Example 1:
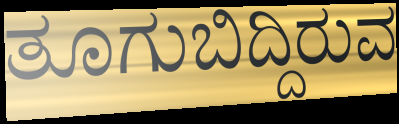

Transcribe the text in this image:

ತೂಗುಬಿದ್ದಿರುವ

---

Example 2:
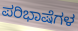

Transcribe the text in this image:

ಪರಿಭಾಷೆಗಳ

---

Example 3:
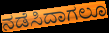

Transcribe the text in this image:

ನಡೆಸಿದಾಗಲೂ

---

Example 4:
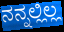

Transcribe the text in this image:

ನನ್ನಲ್ಲಿಲ್ಲ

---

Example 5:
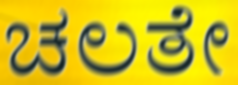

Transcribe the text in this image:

ಚಲತೇ